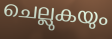
ചെല്ലുകയും